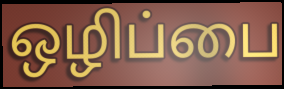
ஒழிப்பை